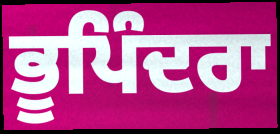
ਭੂਪਿੰਦਰਾ